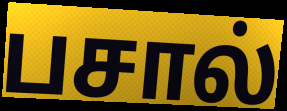
பசால்